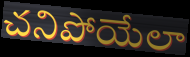
చనిపోయేలా